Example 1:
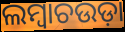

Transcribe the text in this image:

ଲମ୍ୱାଚଉଡ଼ା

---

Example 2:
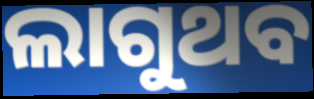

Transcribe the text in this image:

ଲାଗୁଥବ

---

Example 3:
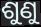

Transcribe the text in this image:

ଶୁଣୁ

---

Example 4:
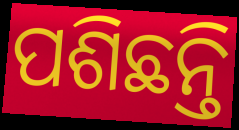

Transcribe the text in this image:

ପଶିଛନ୍ତି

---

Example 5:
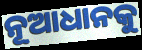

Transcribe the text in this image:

ନୂଆଧାନକୁ